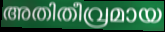
അതിതീവ്രമായ